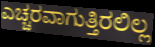
ಎಚ್ಚರವಾಗುತ್ತಿರಲಿಲ್ಲ